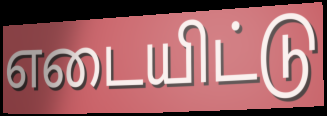
எடையிட்டு